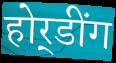
होर्डींग